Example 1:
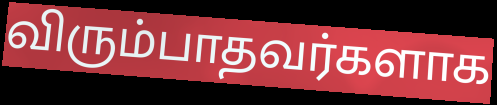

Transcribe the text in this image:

விரும்பாதவர்களாக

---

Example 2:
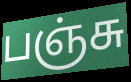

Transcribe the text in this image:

பஞ்சு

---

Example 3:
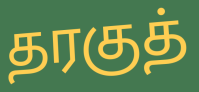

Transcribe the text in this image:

தரகுத்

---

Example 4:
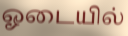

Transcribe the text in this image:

ஓடையில்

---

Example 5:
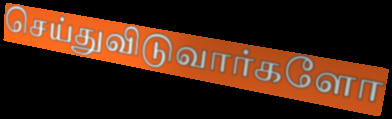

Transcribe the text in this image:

செய்துவிடுவார்களோ